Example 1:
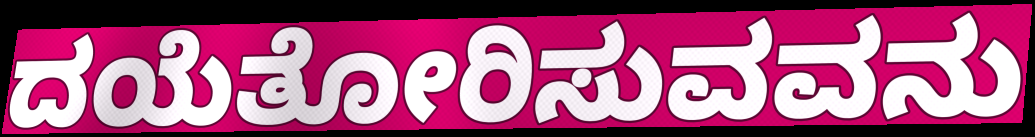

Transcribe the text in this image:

ದಯೆತೋರಿಸುವವನು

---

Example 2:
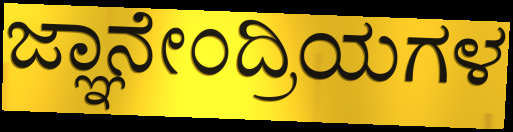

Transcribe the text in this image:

ಜ್ಞಾನೇಂದ್ರಿಯಗಳ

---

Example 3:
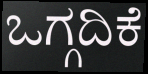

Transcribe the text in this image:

ಒಗ್ಗದಿಕೆ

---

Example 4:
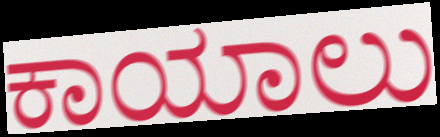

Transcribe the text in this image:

ಕಾಯಾಲು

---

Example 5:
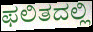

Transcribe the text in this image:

ಫಲಿತದಲ್ಲಿ